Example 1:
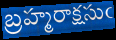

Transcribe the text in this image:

బ్రహ్మరాక్షసుఁ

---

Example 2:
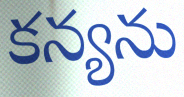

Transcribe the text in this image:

కన్యను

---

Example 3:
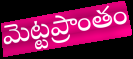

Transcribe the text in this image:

మెట్టప్రాంతం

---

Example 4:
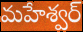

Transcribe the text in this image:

మహేశ్వర్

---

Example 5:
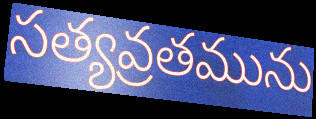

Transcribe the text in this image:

సత్యవ్రతమును